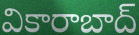
వికారాబాద్